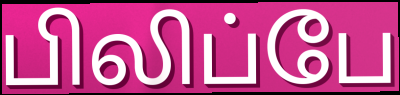
பிலிப்பே